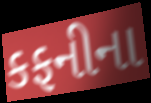
કફનીના